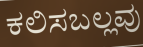
ಕಲಿಸಬಲ್ಲವು